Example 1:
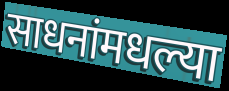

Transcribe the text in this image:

साधनांमधल्या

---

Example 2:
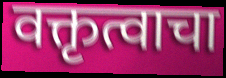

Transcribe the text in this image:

वक्तृत्वाचा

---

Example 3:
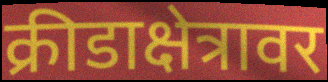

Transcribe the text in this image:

क्रीडाक्षेत्रावर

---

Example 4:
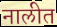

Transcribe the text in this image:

नालीत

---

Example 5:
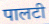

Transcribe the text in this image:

पालटी